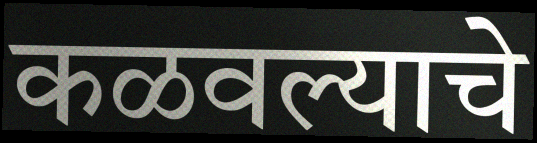
कळवल्याचे